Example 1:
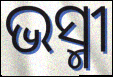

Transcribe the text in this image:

ଭସ୍ମୀ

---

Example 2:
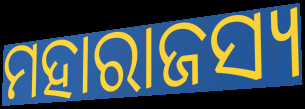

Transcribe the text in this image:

ମହାରାଜସ୍ୟ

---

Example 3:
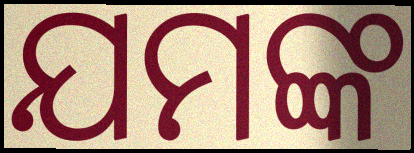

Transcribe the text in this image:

ଯମଙ୍କ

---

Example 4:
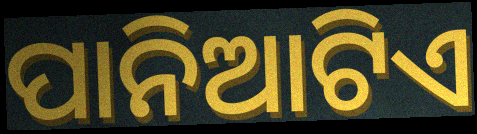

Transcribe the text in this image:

ପାନିଆଟିଏ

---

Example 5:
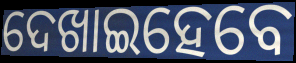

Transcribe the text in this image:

ଦେଖାଇହେବେ